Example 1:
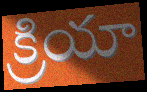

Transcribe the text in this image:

క్రియా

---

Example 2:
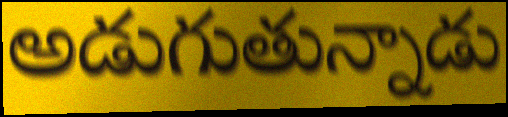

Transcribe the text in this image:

అడుగుతున్నాడు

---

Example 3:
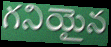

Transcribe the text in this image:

గనియైన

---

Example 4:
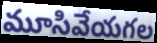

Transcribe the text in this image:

మూసివేయగల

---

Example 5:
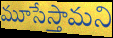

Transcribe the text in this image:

మూసేస్తామని